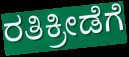
ರತಿಕ್ರೀಡೆಗೆ